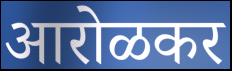
आरोळकर